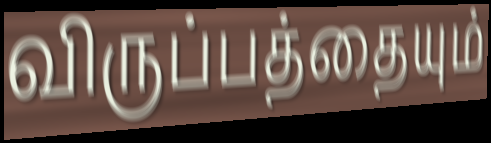
விருப்பத்தையும்